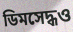
ডিমসেদ্ধও